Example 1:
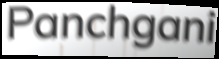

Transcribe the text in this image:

Panchgani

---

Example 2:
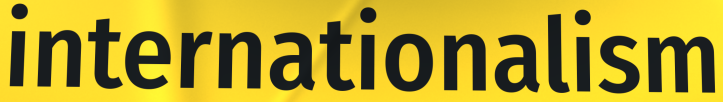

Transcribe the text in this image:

internationalism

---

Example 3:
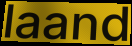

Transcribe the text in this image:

laand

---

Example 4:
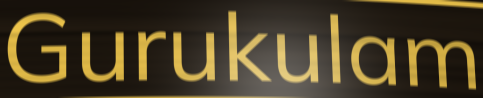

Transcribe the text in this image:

Gurukulam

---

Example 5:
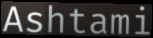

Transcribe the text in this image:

Ashtami